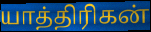
யாத்திரிகன்